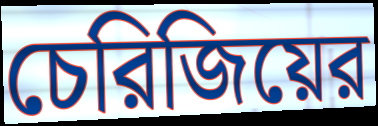
চেরিজিয়ের